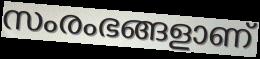
സംരംഭങ്ങളാണ്